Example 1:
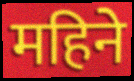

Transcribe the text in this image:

महिने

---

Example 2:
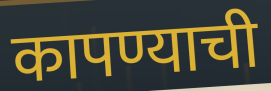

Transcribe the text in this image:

कापण्याची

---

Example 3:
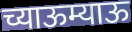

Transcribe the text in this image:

च्याऊम्याऊ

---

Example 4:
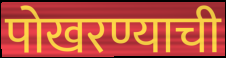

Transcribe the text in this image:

पोखरण्याची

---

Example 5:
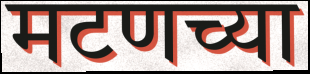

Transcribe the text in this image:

मटणच्या